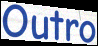
Outro